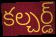
కల్చర్డ్